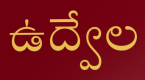
ఉద్వేల